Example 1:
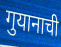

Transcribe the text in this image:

गुयानाची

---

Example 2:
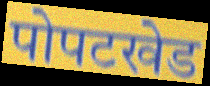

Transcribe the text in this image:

पोपटखेड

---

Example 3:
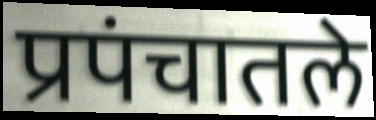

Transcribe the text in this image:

प्रपंचातले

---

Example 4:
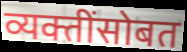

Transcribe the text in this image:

व्यक्‍तींसोबत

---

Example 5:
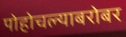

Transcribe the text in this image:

पोहोचल्याबरोबर